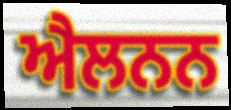
ਐਲਨਨ